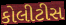
કોલીટીસ